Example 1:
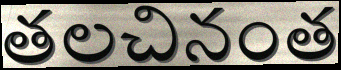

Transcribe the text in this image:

తలచినంత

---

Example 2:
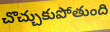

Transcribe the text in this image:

చొచ్చుకుపోతుంది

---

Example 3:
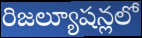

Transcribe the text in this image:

రిజల్యూషన్లలో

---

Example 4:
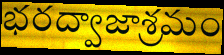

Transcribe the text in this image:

భరద్వాజాశ్రమం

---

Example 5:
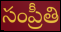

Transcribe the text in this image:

సంప్రీతి